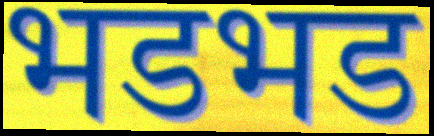
भडभड